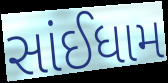
સાંઈધામ